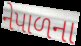
નેપાળના